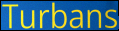
Turbans